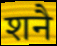
शनै